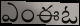
ఎంఈఓ